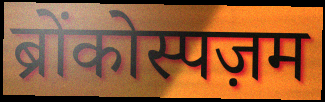
ब्रोंकोस्पज़म